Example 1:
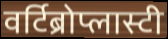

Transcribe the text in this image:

वर्टिब्रोप्लास्टी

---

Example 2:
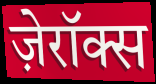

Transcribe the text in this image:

ज़ेरॉक्स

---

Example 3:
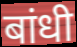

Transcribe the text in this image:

बांधी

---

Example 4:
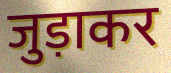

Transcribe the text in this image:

जुड़ाकर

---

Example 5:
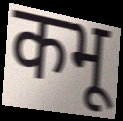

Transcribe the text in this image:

कभू